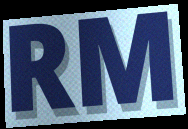
RM